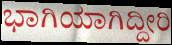
ಭಾಗಿಯಾಗಿದ್ದೀರಿ